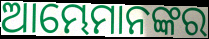
ଆମ୍ଭେମାନଙ୍କର